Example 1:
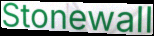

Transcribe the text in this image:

Stonewall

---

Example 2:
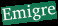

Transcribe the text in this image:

Emigre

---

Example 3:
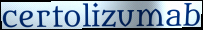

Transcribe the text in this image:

certolizumab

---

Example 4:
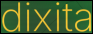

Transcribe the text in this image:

dixita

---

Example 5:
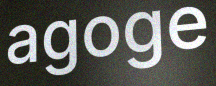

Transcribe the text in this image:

agoge